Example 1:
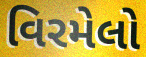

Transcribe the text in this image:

વિરમેલો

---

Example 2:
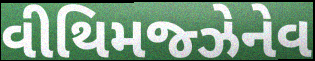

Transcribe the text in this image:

વીથિમજ્ઝેનેવ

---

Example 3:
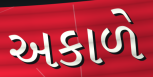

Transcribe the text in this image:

અકાળે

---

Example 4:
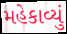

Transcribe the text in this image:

મહેકાવ્યું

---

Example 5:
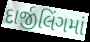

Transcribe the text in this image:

દાર્જીલિંગમાં